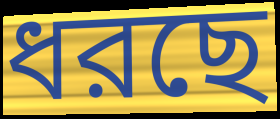
ধরছে